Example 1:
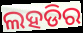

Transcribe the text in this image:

ଲହଡିର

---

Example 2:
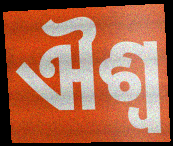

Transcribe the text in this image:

ଐଶ୍ୱ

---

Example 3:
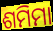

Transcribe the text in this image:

ଶମିମା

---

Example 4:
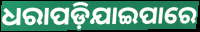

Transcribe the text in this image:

ଧରାପଡ଼ିଯାଇପାରେ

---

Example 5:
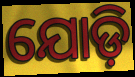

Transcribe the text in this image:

ଯୋଡ଼ି